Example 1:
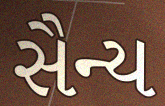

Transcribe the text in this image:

સૈન્ય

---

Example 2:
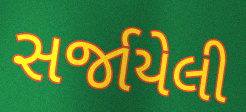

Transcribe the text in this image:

સર્જાયેલી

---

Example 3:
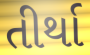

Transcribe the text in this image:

તીર્થા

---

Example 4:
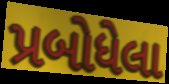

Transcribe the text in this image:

પ્રબોધેલા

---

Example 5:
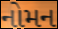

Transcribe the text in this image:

નોમન